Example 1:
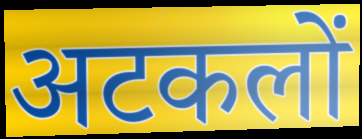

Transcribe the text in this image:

अटकलों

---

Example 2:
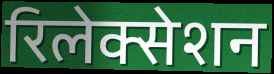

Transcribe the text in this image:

रिलेक्सेशन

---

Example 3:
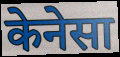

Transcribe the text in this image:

केनेसा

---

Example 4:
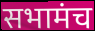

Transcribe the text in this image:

सभामंच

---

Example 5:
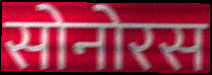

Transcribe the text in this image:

सोनोरस